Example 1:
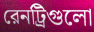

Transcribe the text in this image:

রেনট্রিগুলো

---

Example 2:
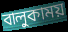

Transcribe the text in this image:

বালুকাময়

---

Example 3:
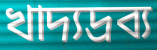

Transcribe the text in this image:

খাদ্যদ্রব্য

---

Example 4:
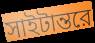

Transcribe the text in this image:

সাইটান্তরে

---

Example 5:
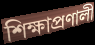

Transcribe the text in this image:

শিক্ষাপ্রণালী